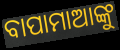
ବାପାମାଆଙ୍କୁ